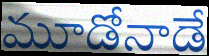
మూడోనాడే